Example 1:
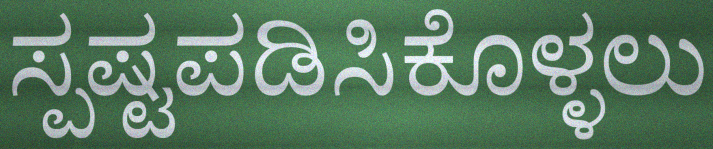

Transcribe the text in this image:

ಸ್ಪಷ್ಟಪಡಿಸಿಕೊಳ್ಳಲು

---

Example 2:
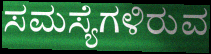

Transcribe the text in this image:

ಸಮಸ್ಯೆಗಳಿರುವ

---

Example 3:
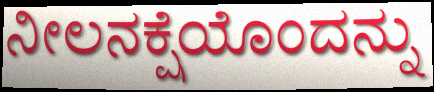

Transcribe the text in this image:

ನೀಲನಕ್ಷೆಯೊಂದನ್ನು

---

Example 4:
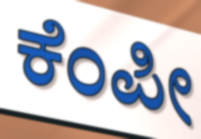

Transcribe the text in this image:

ಕೆಂಪೀ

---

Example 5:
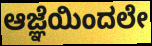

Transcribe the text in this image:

ಆಜ್ಞೆಯಿಂದಲೇ